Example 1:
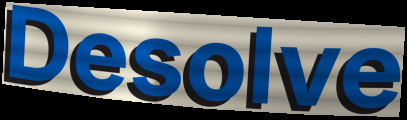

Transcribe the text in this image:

Desolve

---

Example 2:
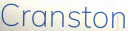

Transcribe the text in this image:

Cranston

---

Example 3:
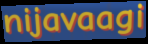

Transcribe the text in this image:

nijavaagi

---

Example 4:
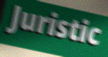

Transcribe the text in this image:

Juristic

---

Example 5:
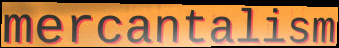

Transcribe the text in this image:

mercantalism